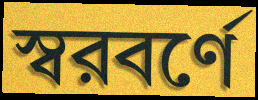
স্বরবর্ণে